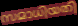
സമാധിയതി